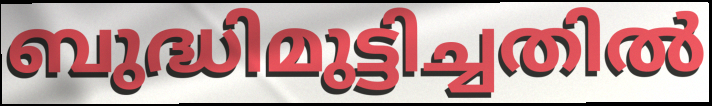
ബുദ്ധിമുട്ടിച്ചതിൽ